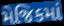
મેજિકમાં